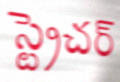
స్ట్రెచర్